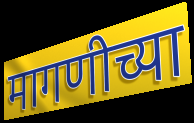
मागणीच्या